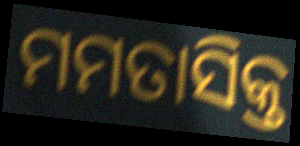
ମମତାସିକ୍ତ